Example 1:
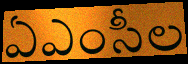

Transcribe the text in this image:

ఏఎంసీల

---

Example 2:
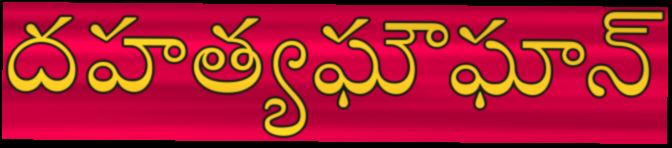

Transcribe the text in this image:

దహత్యఘౌఘాన్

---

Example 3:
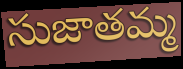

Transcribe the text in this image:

సుజాతమ్మ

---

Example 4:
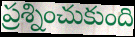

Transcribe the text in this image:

ప్రశ్నించుకుంది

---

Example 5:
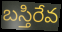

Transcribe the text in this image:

బస్తిరేవ